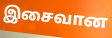
இசைவான